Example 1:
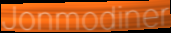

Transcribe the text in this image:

Jonmodiner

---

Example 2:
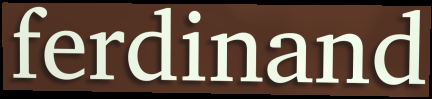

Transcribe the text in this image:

ferdinand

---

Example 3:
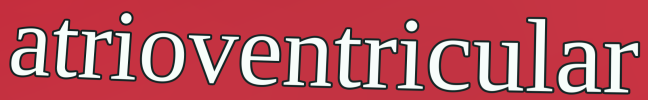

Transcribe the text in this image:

atrioventricular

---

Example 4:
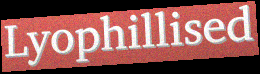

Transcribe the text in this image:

Lyophillised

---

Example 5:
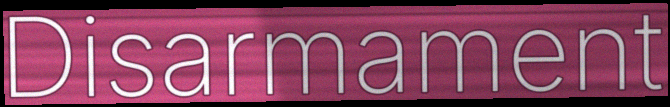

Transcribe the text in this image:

Disarmament